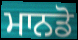
ਮਾਨਡੋ